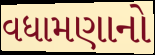
વધામણાનો